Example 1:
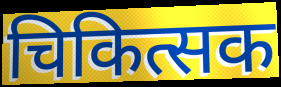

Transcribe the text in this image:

चिकित्सक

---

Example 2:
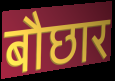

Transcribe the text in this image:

बौछार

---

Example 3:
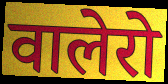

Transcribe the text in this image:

वालेरो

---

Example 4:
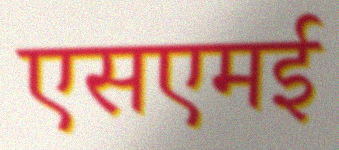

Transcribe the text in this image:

एसएमई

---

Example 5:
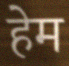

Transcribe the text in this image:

हेम